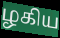
ழகிய